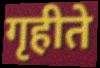
गृहीते